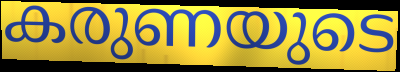
കരുണയുടെ